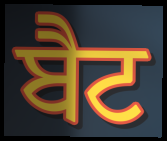
ਬੈਟ